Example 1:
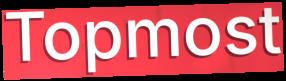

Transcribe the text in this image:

Topmost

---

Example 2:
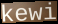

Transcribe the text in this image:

kewi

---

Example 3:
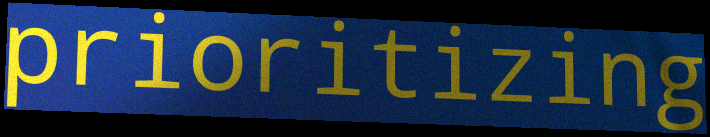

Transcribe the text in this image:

prioritizing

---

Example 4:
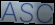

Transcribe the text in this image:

ASC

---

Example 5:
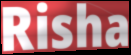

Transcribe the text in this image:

Risha